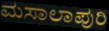
ಮಸಾಲಾಪುರಿ